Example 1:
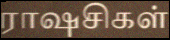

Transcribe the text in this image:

ராஷசிகள்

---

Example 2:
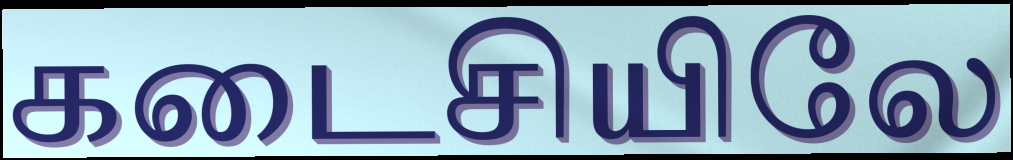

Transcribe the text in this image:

கடைசியிலே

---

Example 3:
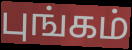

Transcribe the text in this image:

புங்கம்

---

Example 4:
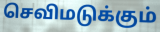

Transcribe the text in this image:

செவிமடுக்கும்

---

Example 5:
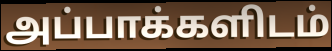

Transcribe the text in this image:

அப்பாக்களிடம்